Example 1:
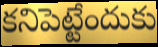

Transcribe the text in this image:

కనిపెట్టేందుకు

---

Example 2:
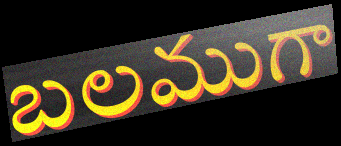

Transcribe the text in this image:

బలముగా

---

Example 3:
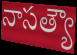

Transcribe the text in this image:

నాసత్యౌ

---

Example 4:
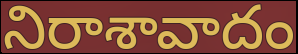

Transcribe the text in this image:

నిరాశావాదం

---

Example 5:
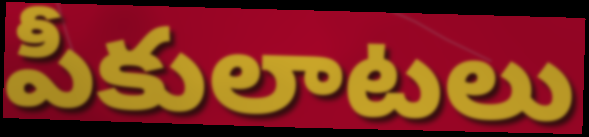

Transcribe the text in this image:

పీకులాటలు